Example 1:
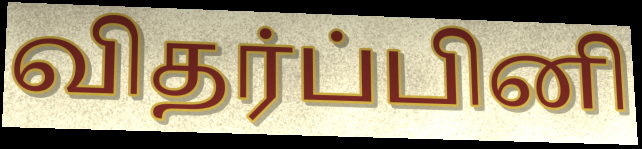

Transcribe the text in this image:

விதர்ப்பினி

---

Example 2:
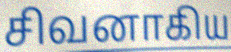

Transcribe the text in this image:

சிவனாகிய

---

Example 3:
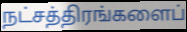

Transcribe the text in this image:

நட்சத்திரங்களைப்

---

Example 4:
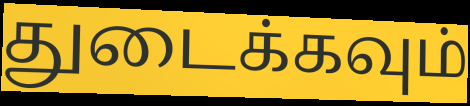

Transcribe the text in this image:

துடைக்கவும்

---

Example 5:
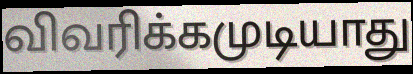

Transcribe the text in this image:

விவரிக்கமுடியாது